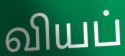
வியப்